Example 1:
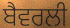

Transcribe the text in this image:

ਬੈਵਰਲੀ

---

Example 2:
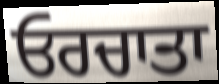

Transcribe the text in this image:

ਓਰਚਾਤਾ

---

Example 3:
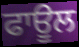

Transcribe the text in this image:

ਫਾਊਲ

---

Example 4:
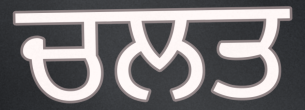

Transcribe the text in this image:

ਚਲਤ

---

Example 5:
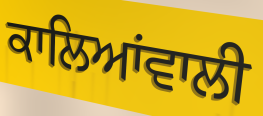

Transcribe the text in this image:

ਕਾਲਿਆਂਵਾਲੀ